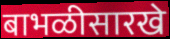
बाभळीसारखे